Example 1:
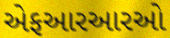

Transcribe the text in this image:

એફઆરઆરઓ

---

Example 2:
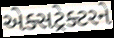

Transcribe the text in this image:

એક્સટ્રેક્ટરને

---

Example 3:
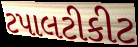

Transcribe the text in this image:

ટપાલટીકીટ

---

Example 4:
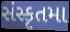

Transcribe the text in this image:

સંસ્કૃતમા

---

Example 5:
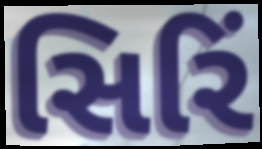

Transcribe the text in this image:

સિરિં